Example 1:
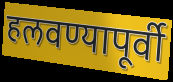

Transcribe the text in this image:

हलवण्यापूर्वी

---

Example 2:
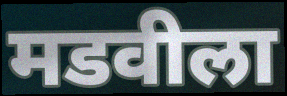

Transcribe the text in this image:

मडवीला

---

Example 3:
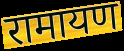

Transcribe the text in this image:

रामायण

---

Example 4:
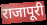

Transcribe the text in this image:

राजापूरी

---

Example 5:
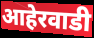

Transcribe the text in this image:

आहेरवाडी